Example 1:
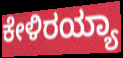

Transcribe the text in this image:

ಕೇಳಿರಯ್ಯಾ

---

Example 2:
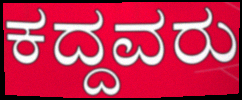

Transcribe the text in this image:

ಕದ್ದವರು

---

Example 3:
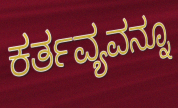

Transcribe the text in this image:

ಕರ್ತವ್ಯವನ್ನೂ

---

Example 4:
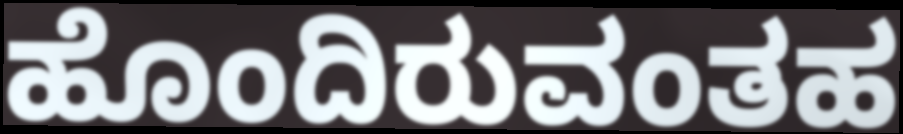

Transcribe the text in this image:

ಹೊಂದಿರುವಂತಹ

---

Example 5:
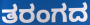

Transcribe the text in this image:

ತರಂಗದ